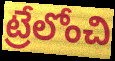
ట్రేలోంచి